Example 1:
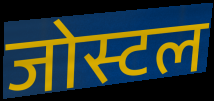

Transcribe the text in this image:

जोस्टल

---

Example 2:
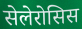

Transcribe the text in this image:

सेलेरोसिस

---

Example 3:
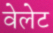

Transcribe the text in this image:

वेलेट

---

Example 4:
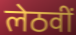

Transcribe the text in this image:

लेठवीं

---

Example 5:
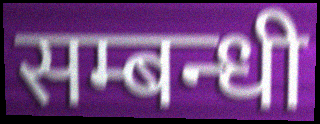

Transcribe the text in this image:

सम्‍बन्‍धी